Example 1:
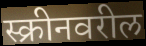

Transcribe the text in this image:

स्क्रीनवरील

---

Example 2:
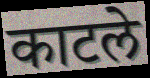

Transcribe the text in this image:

काटले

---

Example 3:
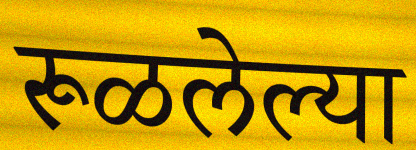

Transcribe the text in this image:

रूळलेल्या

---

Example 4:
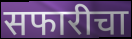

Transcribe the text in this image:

सफारीचा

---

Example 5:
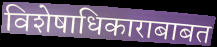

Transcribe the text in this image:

विशेषाधिकाराबाबत